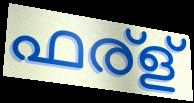
ഫര്ള്